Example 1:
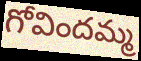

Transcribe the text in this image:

గోవిందమ్మ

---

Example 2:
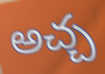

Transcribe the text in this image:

అచ్చ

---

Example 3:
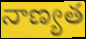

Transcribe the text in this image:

నాణ్యత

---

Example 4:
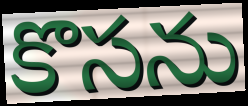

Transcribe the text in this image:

కొసను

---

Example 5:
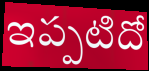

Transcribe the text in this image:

ఇప్పటిదో